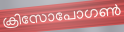
ക്രിസോപോഗൺ